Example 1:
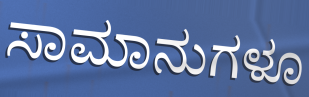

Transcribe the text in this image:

ಸಾಮಾನುಗಳೂ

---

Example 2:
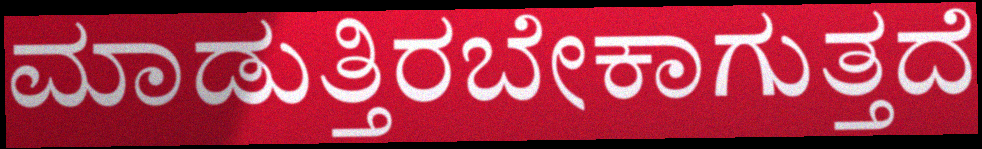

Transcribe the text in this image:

ಮಾಡುತ್ತಿರಬೇಕಾಗುತ್ತದೆ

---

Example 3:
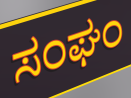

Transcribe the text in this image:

ಸಂಘಂ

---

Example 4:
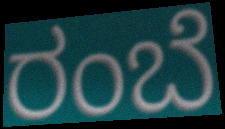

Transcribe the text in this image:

ರಂಬೆ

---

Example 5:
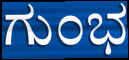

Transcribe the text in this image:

ಗುಂಭ